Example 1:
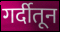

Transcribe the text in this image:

गर्दीतून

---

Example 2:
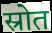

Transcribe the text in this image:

स्रोत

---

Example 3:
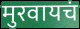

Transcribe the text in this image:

मुरवायचं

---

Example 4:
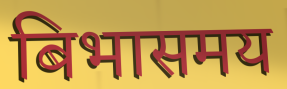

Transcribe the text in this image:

बिभासमय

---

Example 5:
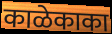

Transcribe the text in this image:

काळेकाका